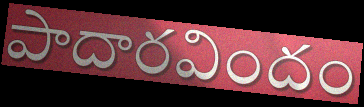
పాదారవిందం